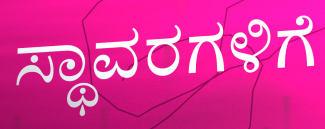
ಸ್ಥಾವರಗಳಿಗೆ